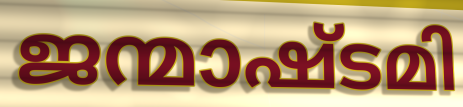
ജന്മാഷ്ടമി